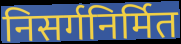
निसर्गनिर्मित